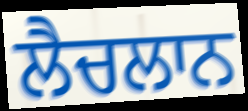
ਲੈਚਲਾਨ